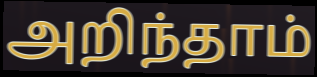
அறிந்தாம்